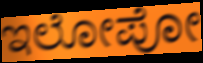
ಇಲೋಪೋ